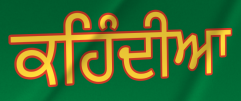
ਕਹਿੰਦੀਆ